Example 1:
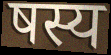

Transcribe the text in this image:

षस्य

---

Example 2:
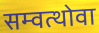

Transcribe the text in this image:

सम्वत्थोवा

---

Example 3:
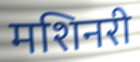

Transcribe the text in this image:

मशिनरी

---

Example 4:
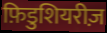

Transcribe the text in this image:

फ़िडुशियरीज़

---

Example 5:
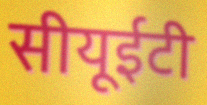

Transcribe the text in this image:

सीयूईटी